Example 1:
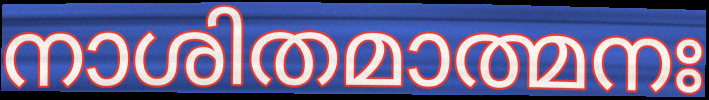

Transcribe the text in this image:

നാശിതമാത്മനഃ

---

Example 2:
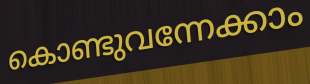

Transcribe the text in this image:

കൊണ്ടുവന്നേക്കാം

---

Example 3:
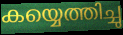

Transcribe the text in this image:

കയ്യെത്തിച്ചു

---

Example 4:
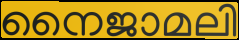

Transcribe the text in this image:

നൈജാമലി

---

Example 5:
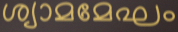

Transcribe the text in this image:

ശ്യാമമേഘം